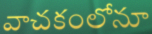
వాచకంలోనూ